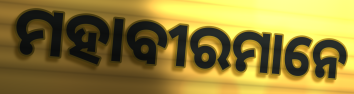
ମହାବୀରମାନେ